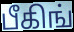
பீகிங்